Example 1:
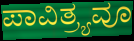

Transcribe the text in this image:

ಪಾವಿತ್ರ್ಯವೂ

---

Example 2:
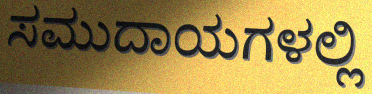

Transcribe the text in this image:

ಸಮುದಾಯಗಳಲ್ಲಿ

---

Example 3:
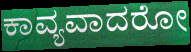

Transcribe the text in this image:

ಕಾವ್ಯವಾದರೋ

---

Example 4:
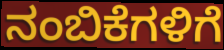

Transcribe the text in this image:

ನಂಬಿಕೆಗಳಿಗೆ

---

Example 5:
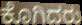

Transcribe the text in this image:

ಕೊಗಿದರು